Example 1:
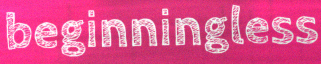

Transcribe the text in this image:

beginningless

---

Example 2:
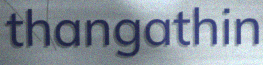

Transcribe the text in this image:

thangathin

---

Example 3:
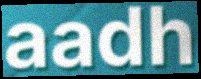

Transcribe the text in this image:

aadh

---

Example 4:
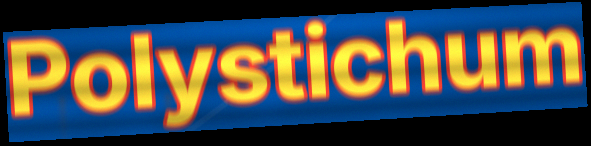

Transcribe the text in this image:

Polystichum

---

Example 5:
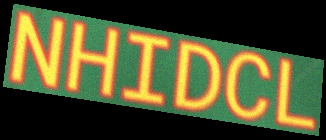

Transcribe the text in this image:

NHIDCL